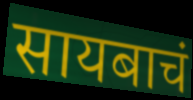
सायबाचं